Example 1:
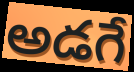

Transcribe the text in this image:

అడగే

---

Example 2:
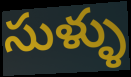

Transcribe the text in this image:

సుళ్ళు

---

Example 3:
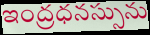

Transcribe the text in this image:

ఇంద్రధనస్సును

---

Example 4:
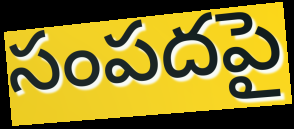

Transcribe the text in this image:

సంపదపై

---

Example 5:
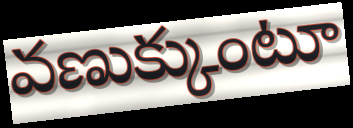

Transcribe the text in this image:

వణుక్కుంటూ